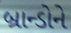
બ્રાન્ડોને